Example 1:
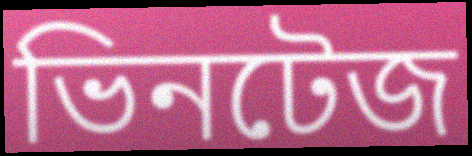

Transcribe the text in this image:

ভিনটেজ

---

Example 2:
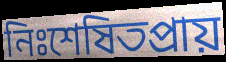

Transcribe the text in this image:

নিঃশেষিতপ্রায়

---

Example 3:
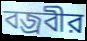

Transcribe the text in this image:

বজ্রবীর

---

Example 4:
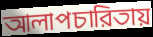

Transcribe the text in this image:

আলাপচারিতায়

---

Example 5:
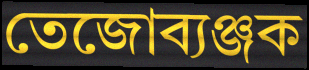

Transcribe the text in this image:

তেজোব্যঞ্জক